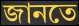
জানতে